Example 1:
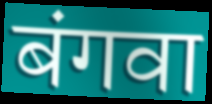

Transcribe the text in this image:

बंगवा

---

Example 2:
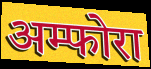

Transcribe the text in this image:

अम्फोरा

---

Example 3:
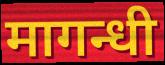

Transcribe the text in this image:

मागन्धी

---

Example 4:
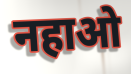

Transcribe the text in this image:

नहाओ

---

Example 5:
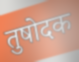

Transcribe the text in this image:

तुषोदक